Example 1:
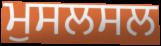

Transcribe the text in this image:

ਮੁਸਲਸਲ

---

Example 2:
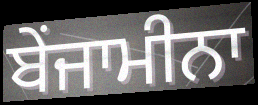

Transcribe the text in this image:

ਬੇਂਜਾਮੀਨਾ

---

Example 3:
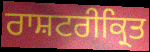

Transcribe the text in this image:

ਰਾਸ਼ਟਰੀਕ੍ਰਿਤ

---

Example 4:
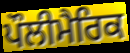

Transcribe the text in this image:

ਪੌਲੀਮੈਰਿਕ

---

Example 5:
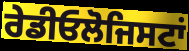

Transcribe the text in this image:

ਰੇਡੀਓਲੋਜਿਸਟਾਂ